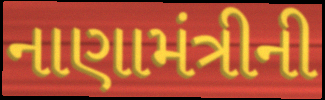
નાણામંત્રીની